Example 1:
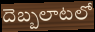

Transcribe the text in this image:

దెబ్బలాటలో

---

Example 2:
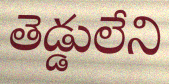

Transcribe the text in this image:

తెడ్డులేని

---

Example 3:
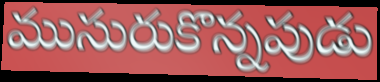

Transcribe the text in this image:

ముసురుకొన్నపుడు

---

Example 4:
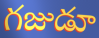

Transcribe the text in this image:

గజుడూ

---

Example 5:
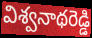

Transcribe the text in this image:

విశ్వనాథరెడ్డి